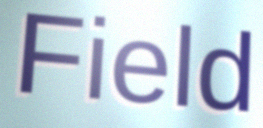
Field